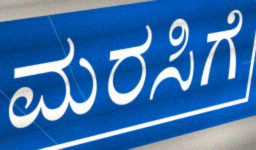
ಮರಸಿಗೆ